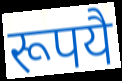
रूपयै